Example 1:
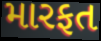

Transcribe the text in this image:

મારફત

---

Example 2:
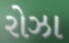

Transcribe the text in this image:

રોઝા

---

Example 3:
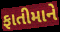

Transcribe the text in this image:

ફાતીમાને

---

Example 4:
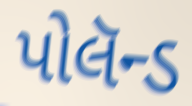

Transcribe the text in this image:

પોલૅન્ડ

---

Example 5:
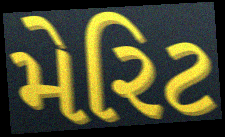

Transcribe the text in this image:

મેરિટ